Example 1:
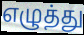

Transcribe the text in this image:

எழுத்து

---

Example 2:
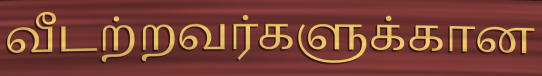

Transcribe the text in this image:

வீடற்றவர்களுக்கான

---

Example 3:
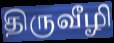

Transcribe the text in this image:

திருவீழி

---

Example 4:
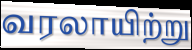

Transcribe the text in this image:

வரலாயிற்று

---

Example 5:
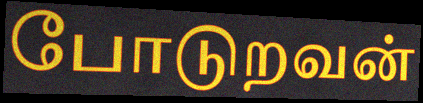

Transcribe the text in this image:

போடுறவன்